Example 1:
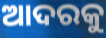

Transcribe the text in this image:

ଆଦରକୁ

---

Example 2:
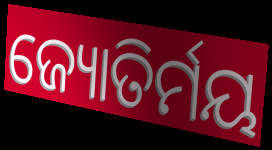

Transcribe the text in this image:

ଜ୍ୟୋତିର୍ମୟ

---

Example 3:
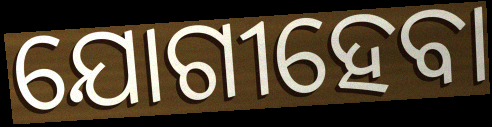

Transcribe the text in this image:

ଯୋଗୀହେବା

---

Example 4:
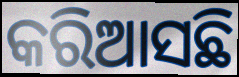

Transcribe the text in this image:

କରିଆସଛି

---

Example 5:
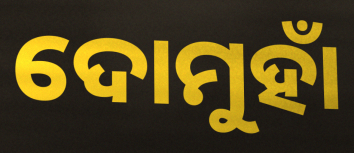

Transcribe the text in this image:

ଦୋମୁହାଁ